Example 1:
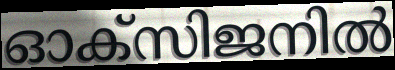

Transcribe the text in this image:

ഓക്സിജനിൽ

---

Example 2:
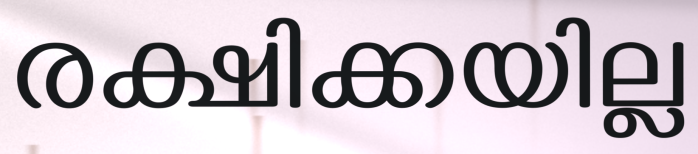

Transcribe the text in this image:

രക്ഷിക്കയില്ല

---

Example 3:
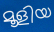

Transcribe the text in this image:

മൂളിയ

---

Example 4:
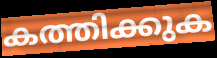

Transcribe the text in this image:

കത്തിക്കുക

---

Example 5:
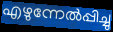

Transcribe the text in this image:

എഴുന്നേൽപ്പിച്ചു